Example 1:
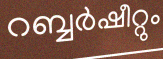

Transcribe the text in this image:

റബ്ബർഷീറ്റും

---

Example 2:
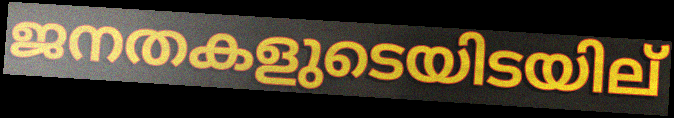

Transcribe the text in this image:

ജനതകളുടെയിടയില്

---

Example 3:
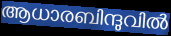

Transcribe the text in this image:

ആധാരബിന്ദുവിൽ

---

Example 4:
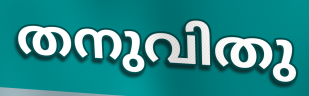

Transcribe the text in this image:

തനുവിതു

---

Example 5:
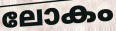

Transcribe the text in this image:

ലോകം